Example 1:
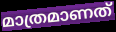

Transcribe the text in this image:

മാത്രമാണത്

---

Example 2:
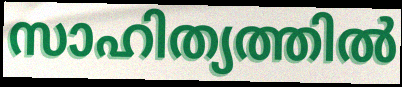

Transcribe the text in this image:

സാഹിത്യത്തിൽ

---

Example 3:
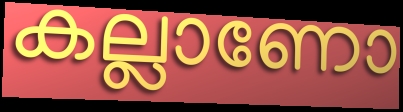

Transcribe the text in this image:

കല്ലാണോ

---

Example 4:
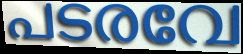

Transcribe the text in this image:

പടരവേ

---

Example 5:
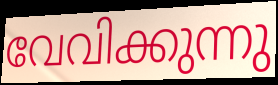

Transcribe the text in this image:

വേവിക്കുന്നു